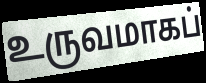
உருவமாகப்